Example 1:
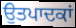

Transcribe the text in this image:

ਉਤਪਾਦਕਾਂ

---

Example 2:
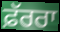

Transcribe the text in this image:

ਫ਼ੱਰਰਾ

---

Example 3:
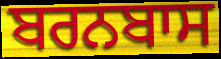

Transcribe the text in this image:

ਬਰਨਬਾਸ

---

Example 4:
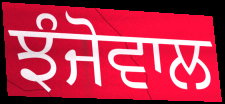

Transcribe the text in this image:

ਝੰਜੋਵਾਲ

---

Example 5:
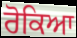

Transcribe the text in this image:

ਰੋਕਿਆ